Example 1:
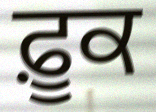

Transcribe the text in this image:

ਫ਼ੂਕ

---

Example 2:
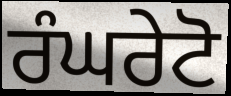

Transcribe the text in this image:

ਰੰਘਰੇਟੋ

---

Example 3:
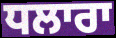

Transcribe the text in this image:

ਧਲਾਰਾ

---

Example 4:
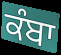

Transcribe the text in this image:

ਕੰਬਾ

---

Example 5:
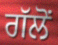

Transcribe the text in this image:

ਗੱਲੋਂ